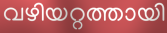
വഴിയറ്റത്തായി